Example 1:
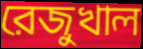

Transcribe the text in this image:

রেজুখাল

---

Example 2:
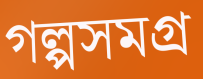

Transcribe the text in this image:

গল্পসমগ্র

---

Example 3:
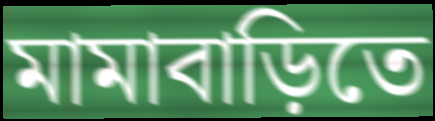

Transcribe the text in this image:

মামাবাড়িতে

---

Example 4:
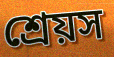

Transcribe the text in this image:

শ্রেয়স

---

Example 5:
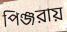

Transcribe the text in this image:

পিঞ্জরায়